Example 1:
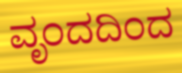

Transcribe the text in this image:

ವೃಂದದಿಂದ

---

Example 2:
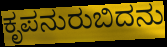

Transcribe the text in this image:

ಕೃಪನುರುಬಿದನು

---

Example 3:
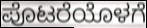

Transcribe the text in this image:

ಪೊಟರೆಯೊಳಗೆ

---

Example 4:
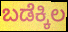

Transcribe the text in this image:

ಬಡೆಕ್ಕಿಲ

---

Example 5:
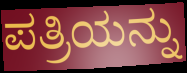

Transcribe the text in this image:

ಪತ್ರಿಯನ್ನು